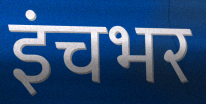
इंचभर